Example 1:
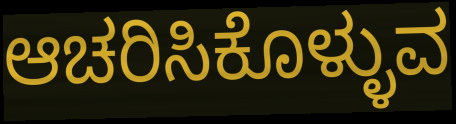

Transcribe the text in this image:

ಆಚರಿಸಿಕೊಳ್ಳುವ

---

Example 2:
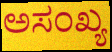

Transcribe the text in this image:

ಅಸಂಖ್ಯ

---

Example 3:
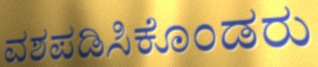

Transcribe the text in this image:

ವಶಪಡಿಸಿಕೊಂಡರು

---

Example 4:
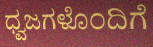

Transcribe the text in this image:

ಧ್ವಜಗಳೊಂದಿಗೆ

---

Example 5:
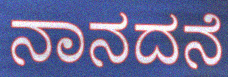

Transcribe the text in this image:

ನಾನದನೆ